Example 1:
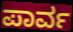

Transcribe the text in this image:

ಪಾರ್ವ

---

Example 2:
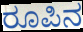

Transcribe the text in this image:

ರೂಪಿನ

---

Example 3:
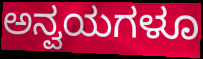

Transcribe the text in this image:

ಅನ್ವಯಗಳೂ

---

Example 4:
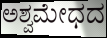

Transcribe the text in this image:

ಅಶ್ವಮೇಧದ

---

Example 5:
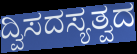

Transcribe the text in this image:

ದ್ವಿಸದಸ್ಯತ್ವದ